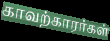
காவற்காரர்கள்